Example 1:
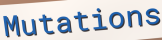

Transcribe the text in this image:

Mutations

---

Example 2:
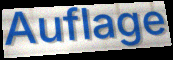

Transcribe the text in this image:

Auflage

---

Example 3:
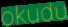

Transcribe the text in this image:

okudu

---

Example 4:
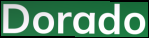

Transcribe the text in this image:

Dorado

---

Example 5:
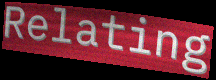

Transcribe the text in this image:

Relating